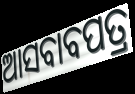
ଆସବାବପତ୍ର